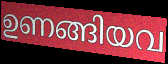
ഉണങ്ങിയവ